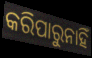
କରିପାରୁନାହିଁ